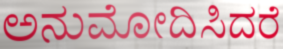
ಅನುಮೋದಿಸಿದರೆ